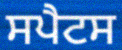
ਸਪੈਟਸ